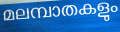
മലമ്പാതകളും